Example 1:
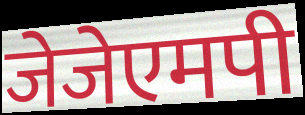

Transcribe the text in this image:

जेजेएमपी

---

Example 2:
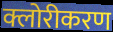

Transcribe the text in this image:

क्लोरीकरण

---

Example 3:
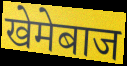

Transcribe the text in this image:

खेमेबाज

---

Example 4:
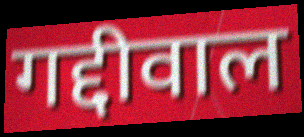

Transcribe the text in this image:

गद्दीवाल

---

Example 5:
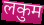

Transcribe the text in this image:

लकुम